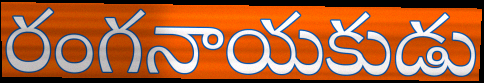
రంగనాయకుడు